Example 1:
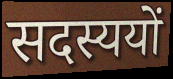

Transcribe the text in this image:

सदस्ययों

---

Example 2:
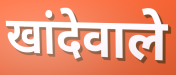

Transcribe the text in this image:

खांदेवाले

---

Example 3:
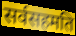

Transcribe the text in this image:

सर्वसहमति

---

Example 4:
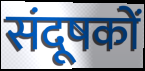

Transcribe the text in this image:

संदूषकों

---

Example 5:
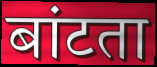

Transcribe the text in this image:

बांटता